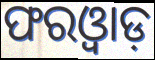
ଫରଓ୍ୱାଡ଼